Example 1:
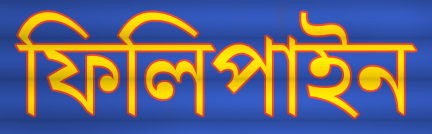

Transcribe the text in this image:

ফিলিপাইন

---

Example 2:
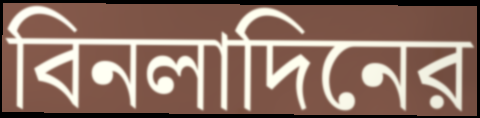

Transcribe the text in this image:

বিনলাদিনের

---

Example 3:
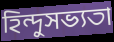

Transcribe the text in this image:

হিন্দুসভ্যতা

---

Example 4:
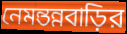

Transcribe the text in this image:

নেমন্তন্নবাড়ির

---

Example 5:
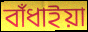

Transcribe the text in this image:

বাঁধাইয়া